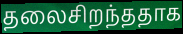
தலைசிறந்ததாக